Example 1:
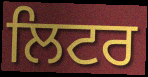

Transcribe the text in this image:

ਲਿਟਰ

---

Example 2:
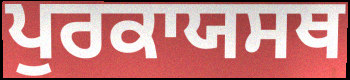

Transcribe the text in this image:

ਪੁਰਕਾਯਸਥ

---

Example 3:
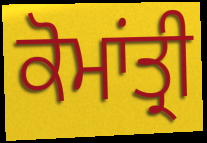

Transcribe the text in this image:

ਕੋਮਾਂਤ੍ਰੀ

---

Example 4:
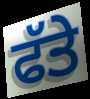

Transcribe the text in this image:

ਫੱਤੇ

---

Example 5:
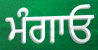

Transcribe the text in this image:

ਮੰਗਾਓ